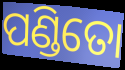
ପଣ୍ଡିତୋ